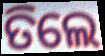
ତିଲେ